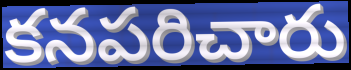
కనపరిచారు